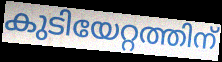
കുടിയേറ്റത്തിന്